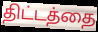
திட்டத்தை